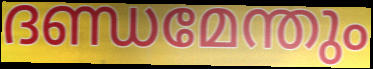
ദണ്ഡമേന്തും